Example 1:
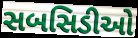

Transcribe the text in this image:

સબસિડીઓ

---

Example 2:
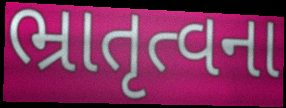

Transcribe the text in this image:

ભ્રાતૃત્વના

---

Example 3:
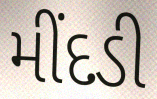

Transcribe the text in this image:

મીંદડી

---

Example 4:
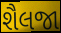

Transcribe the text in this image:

શૈલજા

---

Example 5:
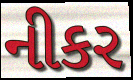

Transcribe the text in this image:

નીકર